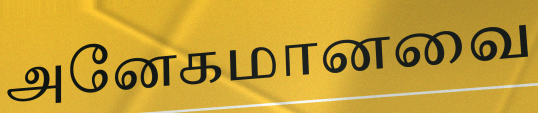
அனேகமானவை